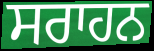
ਸਰਾਹਨ